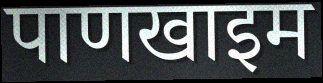
पाणखाइम